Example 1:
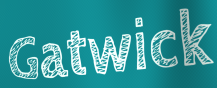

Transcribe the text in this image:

Gatwick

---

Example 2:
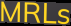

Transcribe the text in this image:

MRLs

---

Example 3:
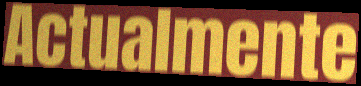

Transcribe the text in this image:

Actualmente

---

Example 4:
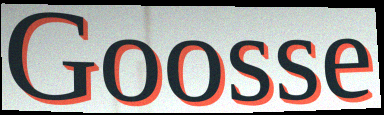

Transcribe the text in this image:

Goosse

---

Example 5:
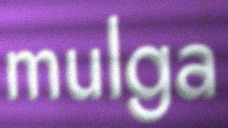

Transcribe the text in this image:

mulga